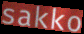
sakko